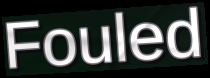
Fouled